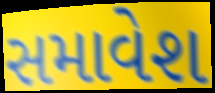
સમાવેશ